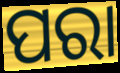
ପରା